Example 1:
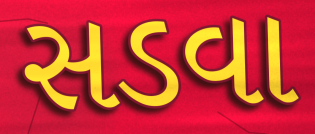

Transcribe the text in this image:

સડવા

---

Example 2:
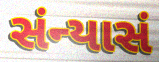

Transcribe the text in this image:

સંન્યાસં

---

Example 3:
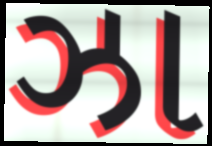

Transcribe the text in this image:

ઝા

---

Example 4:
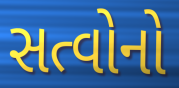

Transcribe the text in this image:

સત્વોનો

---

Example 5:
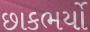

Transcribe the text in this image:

છાકભર્યો